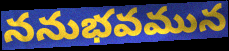
ననుభవమున